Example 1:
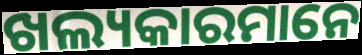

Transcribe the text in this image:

ଖଲ୍ୟକାରମାନେ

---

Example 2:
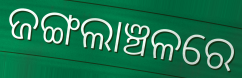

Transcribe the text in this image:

ଜଙ୍ଗଲାଞ୍ଚଳରେ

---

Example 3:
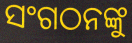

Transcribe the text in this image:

ସଂଗଠନଙ୍କୁ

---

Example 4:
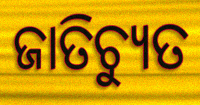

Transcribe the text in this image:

ଜାତିଚ୍ୟୁତ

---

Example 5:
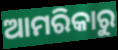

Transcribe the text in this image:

ଆମରିକାରୁ